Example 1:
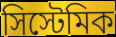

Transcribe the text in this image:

সিস্টেমিক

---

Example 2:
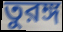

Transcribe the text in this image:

তুরঙ্গ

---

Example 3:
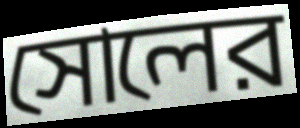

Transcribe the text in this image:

সোলের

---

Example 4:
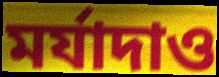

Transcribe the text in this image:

মর্যাদাও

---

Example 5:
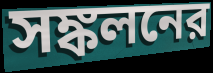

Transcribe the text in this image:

সঙ্কলনের